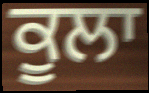
ਕੂਲਾ